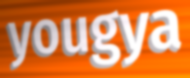
yougya